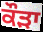
ਕੌਡ਼ਾ